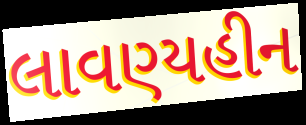
લાવણ્યહીન